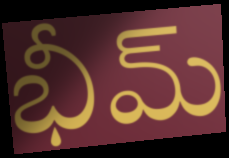
భీమ్